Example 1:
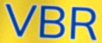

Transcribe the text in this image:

VBR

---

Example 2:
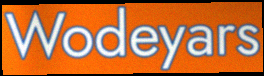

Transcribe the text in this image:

Wodeyars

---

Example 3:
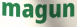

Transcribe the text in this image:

magun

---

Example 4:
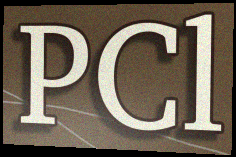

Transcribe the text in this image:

PCl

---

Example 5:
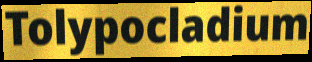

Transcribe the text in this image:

Tolypocladium